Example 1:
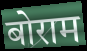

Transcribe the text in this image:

बोराम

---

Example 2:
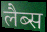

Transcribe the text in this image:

लैब्स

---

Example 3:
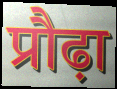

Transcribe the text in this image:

प्रौढ़ा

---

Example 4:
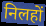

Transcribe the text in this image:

निलहों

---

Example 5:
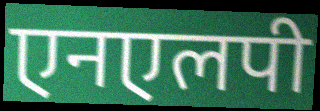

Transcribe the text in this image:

एनएलपी